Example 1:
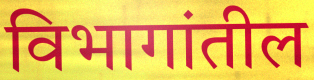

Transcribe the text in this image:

विभागांतील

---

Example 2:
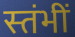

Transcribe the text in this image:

स्तंभीं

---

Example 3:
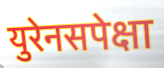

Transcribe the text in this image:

युरेनसपेक्षा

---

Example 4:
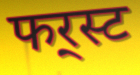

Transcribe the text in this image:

फर्स्ट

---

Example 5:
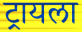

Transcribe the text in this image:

ट्रायला